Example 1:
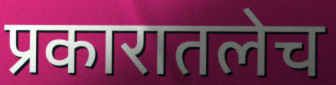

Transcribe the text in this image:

प्रकारातलेच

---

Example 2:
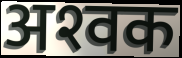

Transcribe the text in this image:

अश्वक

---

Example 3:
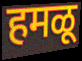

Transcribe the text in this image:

हमळू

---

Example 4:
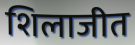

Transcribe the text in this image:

शिलाजीत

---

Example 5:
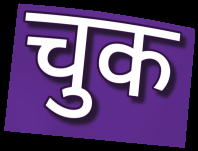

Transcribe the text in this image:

चुक